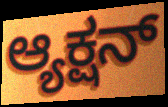
ಆ್ಯಕ್ಷನ್